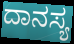
ದಾನಸ್ಯ